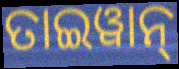
ତାଇୱାନ୍